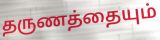
தருணத்தையும்